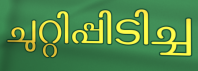
ചുറ്റിപ്പിടിച്ച